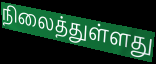
நிலைத்துள்ளது